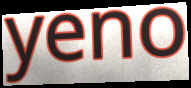
yeno